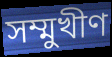
সম্মুখীণ